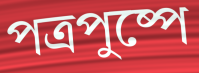
পত্রপুষ্পে